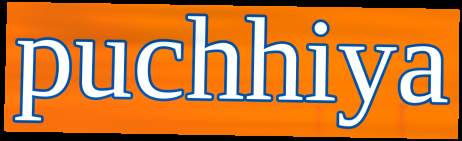
puchhiya